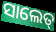
ସାଲେତ୍